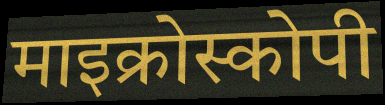
माइक्रोस्कोपी